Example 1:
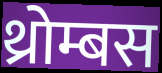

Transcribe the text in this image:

थ्रोम्बस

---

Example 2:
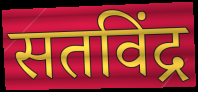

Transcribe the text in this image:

सतविंद्र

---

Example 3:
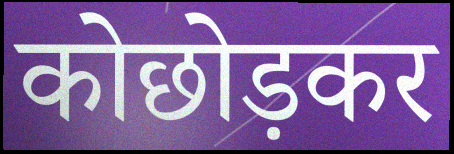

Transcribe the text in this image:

कोछोड़कर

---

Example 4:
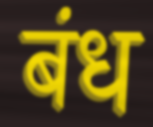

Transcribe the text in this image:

बंध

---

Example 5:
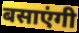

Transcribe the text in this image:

बसाएंगी